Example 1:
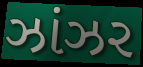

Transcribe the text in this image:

ઝાંઝર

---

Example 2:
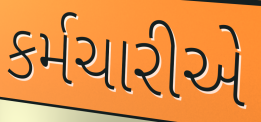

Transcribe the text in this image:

કર્મચારીએ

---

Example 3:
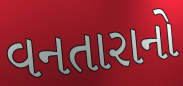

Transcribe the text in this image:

વનતારાનો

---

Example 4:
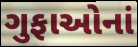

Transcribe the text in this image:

ગુફાઓનાં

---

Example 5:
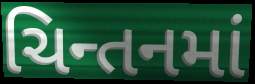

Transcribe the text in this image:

ચિન્તનમાં